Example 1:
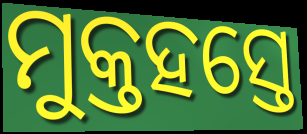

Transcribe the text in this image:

ମୁକ୍ତହସ୍ତେ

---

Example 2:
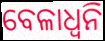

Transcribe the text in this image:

ବେଳାଧ୍ୱନି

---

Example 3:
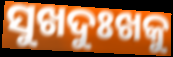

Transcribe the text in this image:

ସୁଖଦୁଃଖକୁ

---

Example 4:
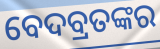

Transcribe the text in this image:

ବେଦବ୍ରତଙ୍କର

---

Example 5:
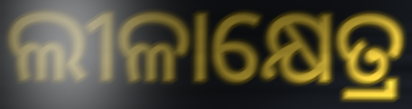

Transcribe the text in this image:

ଲୀଳାକ୍ଷେତ୍ର